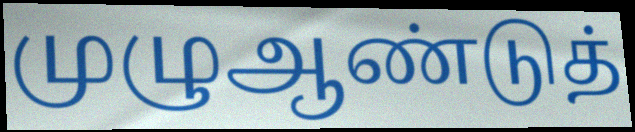
முழுஆண்டுத்